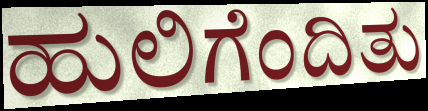
ಹುಲಿಗೆಂದಿತು